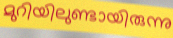
മുറിയിലുണ്ടായിരുന്നു